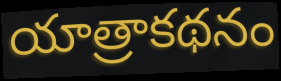
యాత్రాకథనం